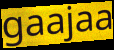
gaajaa